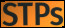
STPs